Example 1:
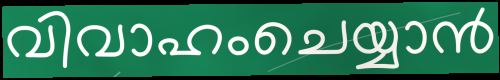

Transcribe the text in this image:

വിവാഹംചെയ്യാൻ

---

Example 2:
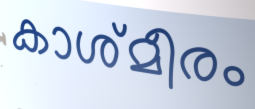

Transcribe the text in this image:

കാശ്മീരം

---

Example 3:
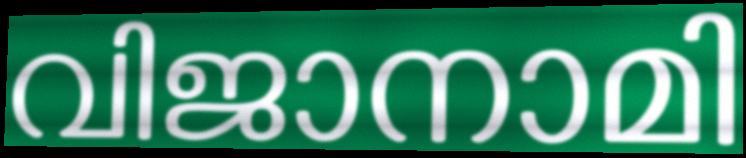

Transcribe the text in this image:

വിജാനാമി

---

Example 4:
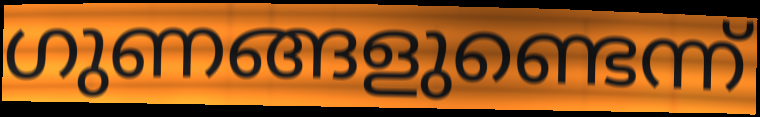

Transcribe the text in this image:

ഗുണങ്ങളുണ്ടെന്ന്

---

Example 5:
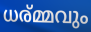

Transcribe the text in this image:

ധര്മ്മവും